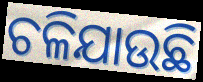
ଚଳିଯାଉଛି